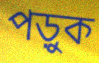
পড়ুক